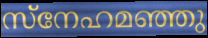
സ്നേഹമഞ്ഞു